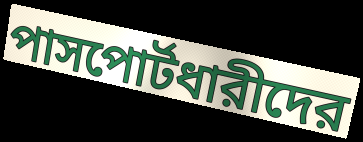
পাসপোর্টধারীদের